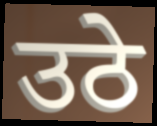
उठे